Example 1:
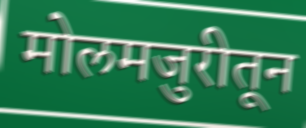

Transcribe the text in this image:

मोलमजुरीतून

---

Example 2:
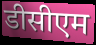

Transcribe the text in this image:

डीसीएम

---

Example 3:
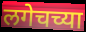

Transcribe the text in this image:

लगेचच्या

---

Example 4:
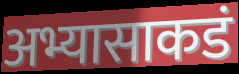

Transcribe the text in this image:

अभ्यासाकडं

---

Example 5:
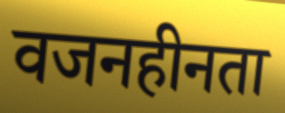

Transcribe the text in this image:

वजनहीनता